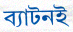
ব্যাটনই